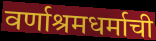
वर्णाश्रमधर्माची